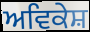
ਅਵਿਕੇਸ਼